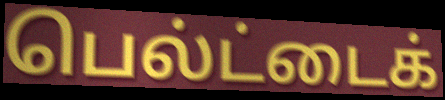
பெல்ட்டைக்